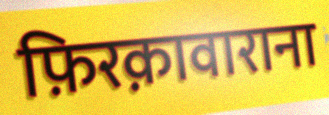
फ़िरक़ावाराना